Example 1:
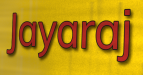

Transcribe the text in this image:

Jayaraj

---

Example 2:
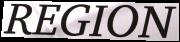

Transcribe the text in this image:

REGION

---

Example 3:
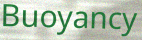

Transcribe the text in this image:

Buoyancy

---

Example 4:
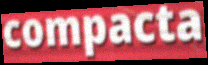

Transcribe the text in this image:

compacta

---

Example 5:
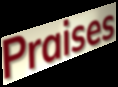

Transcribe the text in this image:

Praises